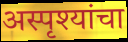
अस्पृश्यांचा